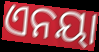
ଏନୟା